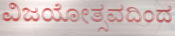
ವಿಜಯೋತ್ಸವದಿಂದ